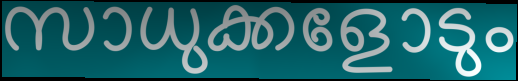
സാധുക്കളോടും